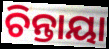
ଚିନ୍ତାୟା